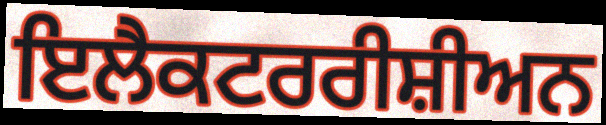
ਇਲੈਕਟਰਰੀਸ਼ੀਅਨ